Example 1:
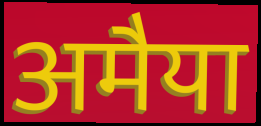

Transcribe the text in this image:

अमैया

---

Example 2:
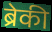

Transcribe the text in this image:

ब्रेकी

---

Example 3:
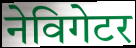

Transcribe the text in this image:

नेविगेटर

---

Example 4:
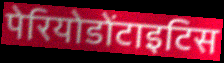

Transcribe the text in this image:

पेरियोडोंटाइटिस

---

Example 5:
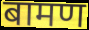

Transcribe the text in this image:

बामण